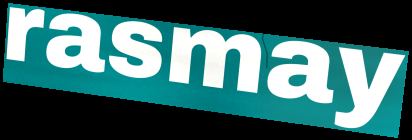
rasmay